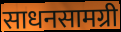
साधनसामग्री